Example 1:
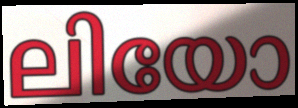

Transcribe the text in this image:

ലിയോ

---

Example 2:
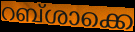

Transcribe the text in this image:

റബ്ശാക്കെ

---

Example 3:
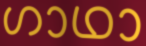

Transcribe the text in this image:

ഗാഥാ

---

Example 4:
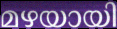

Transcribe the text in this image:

മഴയായി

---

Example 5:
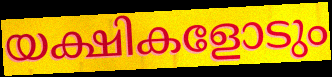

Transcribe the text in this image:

യക്ഷികളോടും